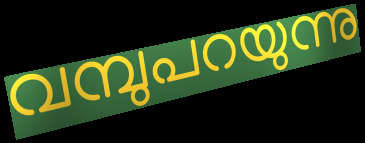
വമ്പുപറയുന്നു